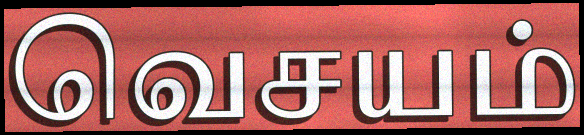
வெசயம்